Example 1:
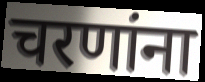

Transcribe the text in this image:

चरणांना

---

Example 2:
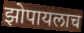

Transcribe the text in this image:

झोपायलाच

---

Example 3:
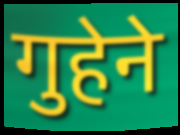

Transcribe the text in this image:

गुहेने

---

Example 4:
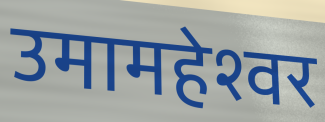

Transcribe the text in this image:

उमामहेश्वर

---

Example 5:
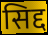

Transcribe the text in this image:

सिद्द